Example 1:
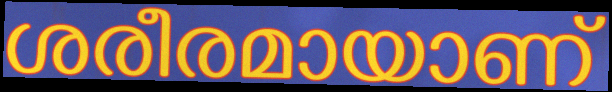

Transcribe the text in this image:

ശരീരമായാണ്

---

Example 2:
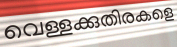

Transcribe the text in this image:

വെള്ളക്കുതിരകളെ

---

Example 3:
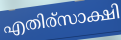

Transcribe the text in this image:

എതിര്സാക്ഷി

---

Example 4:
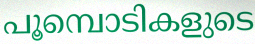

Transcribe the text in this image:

പൂമ്പൊടികളുടെ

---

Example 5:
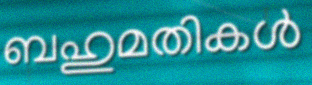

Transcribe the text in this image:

ബഹുമതികൾ